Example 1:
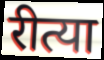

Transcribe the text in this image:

रीत्या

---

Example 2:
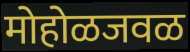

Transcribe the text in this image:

मोहोळजवळ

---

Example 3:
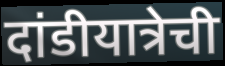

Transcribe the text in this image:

दांडीयात्रेची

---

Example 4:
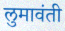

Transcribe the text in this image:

लुमावंती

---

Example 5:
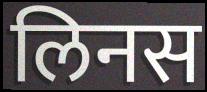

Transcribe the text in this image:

लिनस